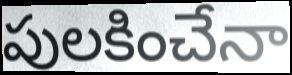
పులకించేనా